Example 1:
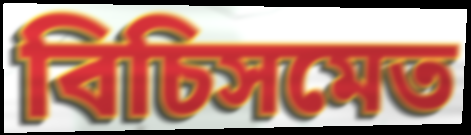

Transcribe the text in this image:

বিচিসমেত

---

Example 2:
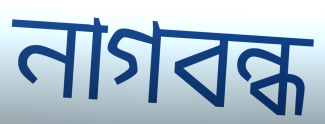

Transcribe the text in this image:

নাগবন্ধ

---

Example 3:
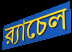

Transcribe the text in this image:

র‍্যাচেল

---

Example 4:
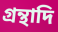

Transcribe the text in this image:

গ্রন্থাদি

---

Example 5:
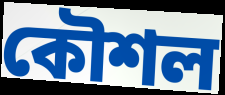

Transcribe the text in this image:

কৌশল